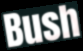
Bush